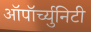
ऑपॉर्च्युनिटी